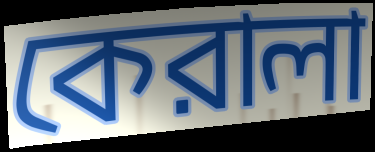
কেরালা